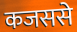
कजससे